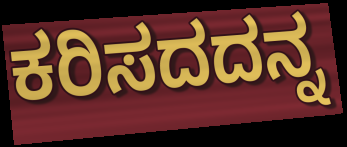
ಕರಿಸದದನ್ನ